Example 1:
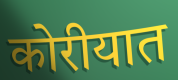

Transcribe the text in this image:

कोरीयात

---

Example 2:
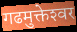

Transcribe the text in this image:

गढमुक्तेश्वर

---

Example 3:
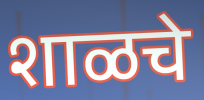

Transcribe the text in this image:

शाळचे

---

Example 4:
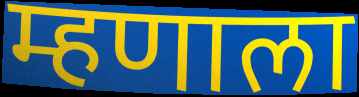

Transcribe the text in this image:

म्‍हणाला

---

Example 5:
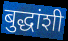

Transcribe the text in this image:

बुद्धांशी